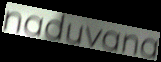
naduvana